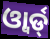
ଓ୍ୱାର୍ଡ୍